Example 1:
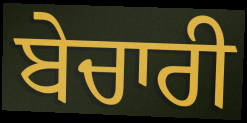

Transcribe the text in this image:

ਬੇਚਾਰੀ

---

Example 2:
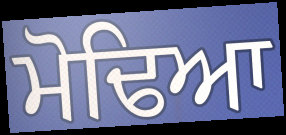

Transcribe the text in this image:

ਮੋਢਿਆ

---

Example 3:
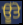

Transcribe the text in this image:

ਊੱਤੇ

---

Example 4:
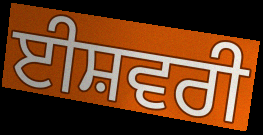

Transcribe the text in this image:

ਈਸ਼ਵਰੀ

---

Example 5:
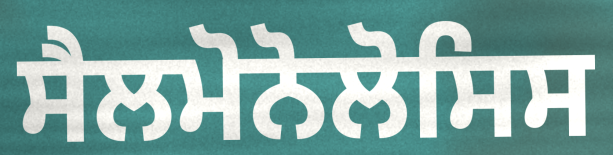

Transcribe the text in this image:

ਸੈਲਮੋਨੋਲੋਸਿਸ